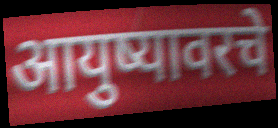
आयुष्यावरचे